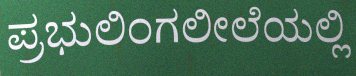
ಪ್ರಭುಲಿಂಗಲೀಲೆಯಲ್ಲಿ